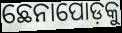
ଛେନାପୋଡ଼କୁ